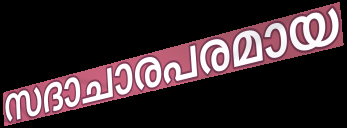
സദാചാരപരമായ